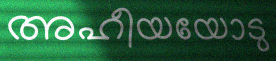
അഹീയയോടു